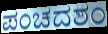
ಪಂಚದಶಂ